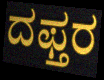
ದಫ್ತರ